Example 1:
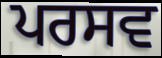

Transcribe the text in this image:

ਪਰਸਵ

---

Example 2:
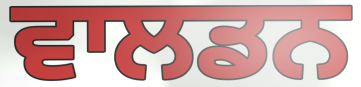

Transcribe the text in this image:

ਵਾਲਡਨ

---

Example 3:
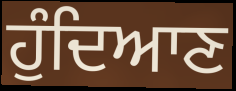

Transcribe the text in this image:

ਹੁੰਦਿਆਣ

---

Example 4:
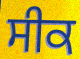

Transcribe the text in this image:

ਸੀਕ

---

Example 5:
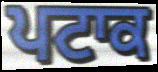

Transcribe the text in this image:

ਪਟਾਕ